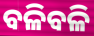
ବଳିବଳି